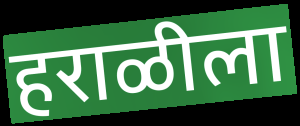
हराळीला